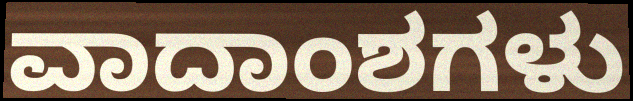
ವಾದಾಂಶಗಳು